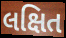
લક્ષિત